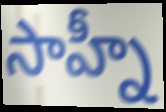
సాహ్నీ